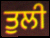
ਤੁਲੀ